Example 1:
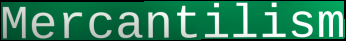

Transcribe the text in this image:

Mercantilism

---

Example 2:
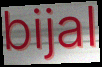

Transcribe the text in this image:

bijal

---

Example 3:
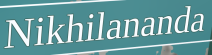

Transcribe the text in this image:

Nikhilananda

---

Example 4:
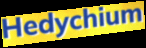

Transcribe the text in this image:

Hedychium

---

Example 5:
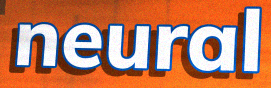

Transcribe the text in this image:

neural